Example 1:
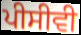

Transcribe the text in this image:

ਪੀਸੀਵੀ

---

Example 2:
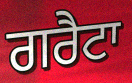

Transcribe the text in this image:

ਗਰੈਟਾ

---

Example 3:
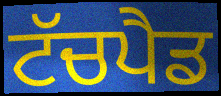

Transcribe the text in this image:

ਟੱਚਪੈਡ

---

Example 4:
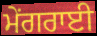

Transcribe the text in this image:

ਮੇਂਗਰਾਈ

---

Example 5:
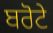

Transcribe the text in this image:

ਬਰੋਟੇ